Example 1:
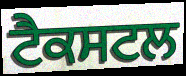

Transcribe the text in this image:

ਟੈਕਸਟਲ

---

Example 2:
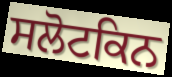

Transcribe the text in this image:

ਸਲੋਟਕਿਨ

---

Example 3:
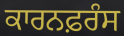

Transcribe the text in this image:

ਕਾਰਨਫ਼ਰੰਸ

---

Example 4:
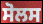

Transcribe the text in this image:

ਸੋਲਸ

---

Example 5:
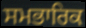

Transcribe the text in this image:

ਸਮਭਾਰਿਕ